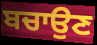
ਬਚਾਉਣ